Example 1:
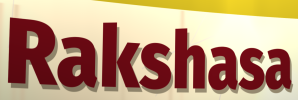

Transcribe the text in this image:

Rakshasa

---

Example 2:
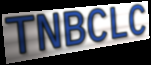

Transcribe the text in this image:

TNBCLC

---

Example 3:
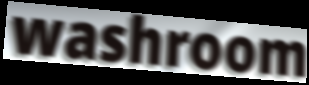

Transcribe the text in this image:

washroom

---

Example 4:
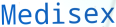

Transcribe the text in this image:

Medisex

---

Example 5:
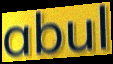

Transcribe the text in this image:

abul